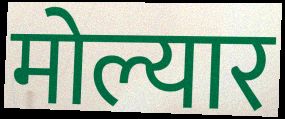
मोल्यार